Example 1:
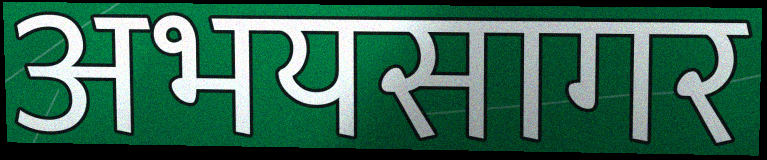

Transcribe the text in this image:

अभयसागर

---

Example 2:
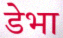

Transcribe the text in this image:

डेभा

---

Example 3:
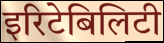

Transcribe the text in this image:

इरिटेबिलिटी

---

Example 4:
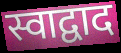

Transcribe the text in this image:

स्वाद्वाद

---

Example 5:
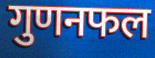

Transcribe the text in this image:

गुणनफल